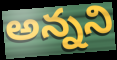
అన్నని